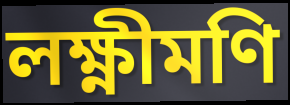
লক্ষ্ণীমণি